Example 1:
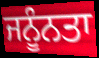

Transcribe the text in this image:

ਜਨੂੰਨਤਾ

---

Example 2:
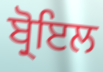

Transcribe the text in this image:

ਬ੍ਰੋਇਲ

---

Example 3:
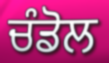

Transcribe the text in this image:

ਚੰਡੋਲ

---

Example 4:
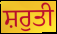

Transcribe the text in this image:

ਸ਼ਰੁਤੀ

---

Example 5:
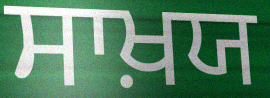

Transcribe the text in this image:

ਸਾਖ਼ਯ